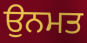
ਉਨਮਤ